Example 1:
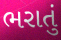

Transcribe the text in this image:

ભરાતું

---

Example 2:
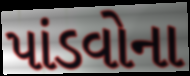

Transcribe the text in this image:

પાંડવોના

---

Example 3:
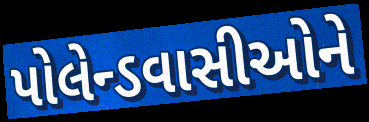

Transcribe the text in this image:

પોલેન્ડવાસીઓને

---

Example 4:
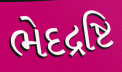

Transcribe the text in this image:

ભેદદ્રષ્ટિ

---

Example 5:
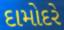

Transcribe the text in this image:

દામોદરે